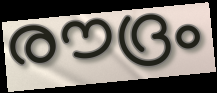
രൗദ്രം